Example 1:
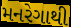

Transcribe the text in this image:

મનરેગાથી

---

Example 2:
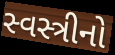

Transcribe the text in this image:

સ્વસ્ત્રીનો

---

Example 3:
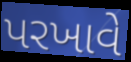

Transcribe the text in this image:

પરખાવે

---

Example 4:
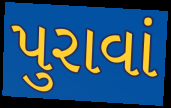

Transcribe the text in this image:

પુરાવાં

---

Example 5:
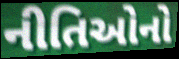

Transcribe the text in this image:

નીતિઓનો